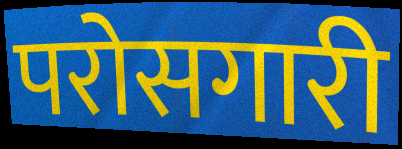
परोसगारी